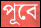
পূবে